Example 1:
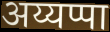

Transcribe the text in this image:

अय्यप्पा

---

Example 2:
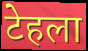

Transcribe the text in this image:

टेहला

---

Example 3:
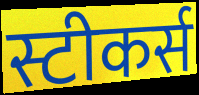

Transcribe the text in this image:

स्टीकर्स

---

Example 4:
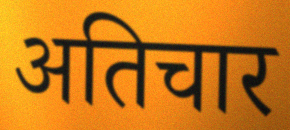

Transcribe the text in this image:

अतिचार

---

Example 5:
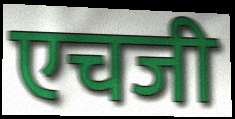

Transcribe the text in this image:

एचजी